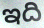
ఇది